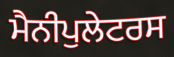
ਮੈਨੀਪੁਲੇਟਰਸ